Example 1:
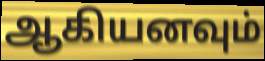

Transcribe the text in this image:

ஆகியனவும்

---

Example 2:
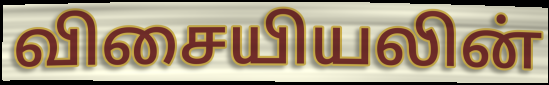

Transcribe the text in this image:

விசையியலின்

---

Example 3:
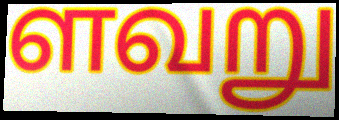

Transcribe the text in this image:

ளவறு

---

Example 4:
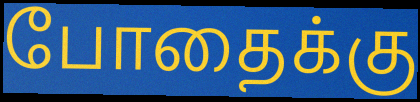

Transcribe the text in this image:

போதைக்கு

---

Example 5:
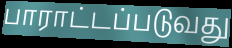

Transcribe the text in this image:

பாராட்டப்படுவது